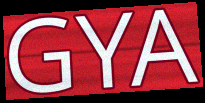
GYA